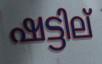
ഷട്ടില്